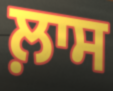
ਲ਼ਾਸ